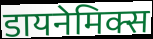
डायनेमिक्स